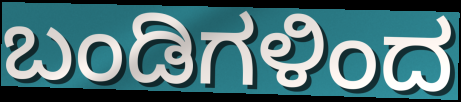
ಬಂಡಿಗಳಿಂದ